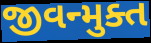
જીવન્મુક્ત